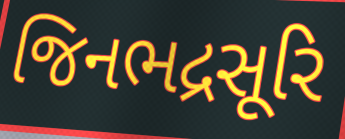
જિનભદ્રસૂરિ